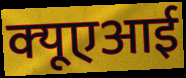
क्यूएआई